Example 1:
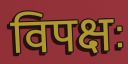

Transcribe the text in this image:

विपक्षः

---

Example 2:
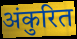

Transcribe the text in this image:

अंकुरित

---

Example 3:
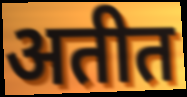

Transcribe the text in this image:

अतीत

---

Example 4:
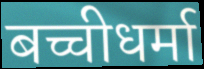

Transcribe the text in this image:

बच्चीधर्मा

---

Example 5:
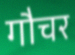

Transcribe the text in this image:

गौचर